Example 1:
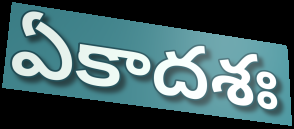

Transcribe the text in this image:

ఏకాదశః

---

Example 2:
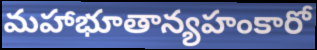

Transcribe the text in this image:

మహాభూతాన్యహంకారో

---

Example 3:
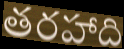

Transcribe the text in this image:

తరహాది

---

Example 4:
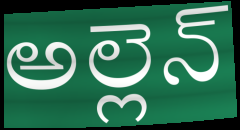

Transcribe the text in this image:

అల్లెన్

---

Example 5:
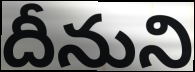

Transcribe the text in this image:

దీనుని